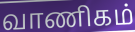
வாணிகம்